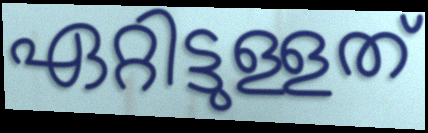
ഏറ്റിട്ടുള്ളത്